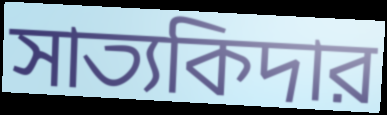
সাত্যকিদার